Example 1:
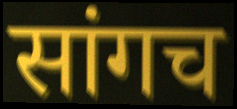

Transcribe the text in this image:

सांगच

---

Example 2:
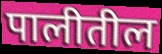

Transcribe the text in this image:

पालीतील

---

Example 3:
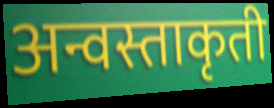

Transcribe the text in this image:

अन्वस्ताकृती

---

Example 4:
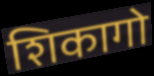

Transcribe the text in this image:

शिकागो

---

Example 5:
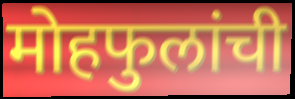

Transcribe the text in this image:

मोहफुलांची